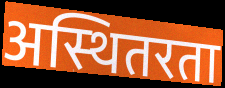
अस्थितरता